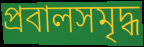
প্রবালসমৃদ্ধ